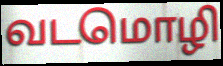
வடமொழி